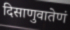
दिसाणुवातेणं